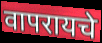
वापरायचे